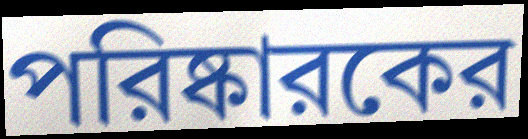
পরিষ্কারকের